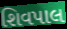
શિવપાલ